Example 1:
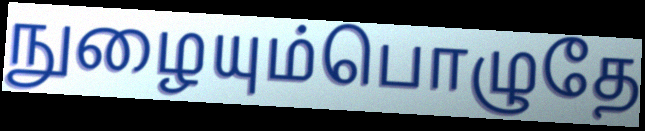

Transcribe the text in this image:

நுழையும்பொழுதே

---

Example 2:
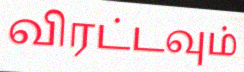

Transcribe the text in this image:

விரட்டவும்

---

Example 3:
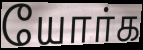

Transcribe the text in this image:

யோர்க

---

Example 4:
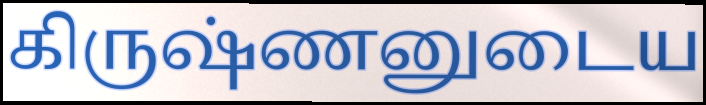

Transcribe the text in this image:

கிருஷ்ணனுடைய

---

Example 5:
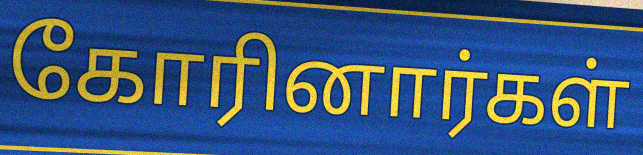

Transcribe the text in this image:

கோரினார்கள்